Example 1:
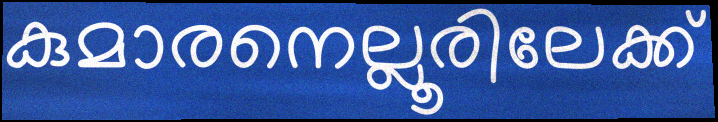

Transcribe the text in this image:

കുമാരനെല്ലൂരിലേക്ക്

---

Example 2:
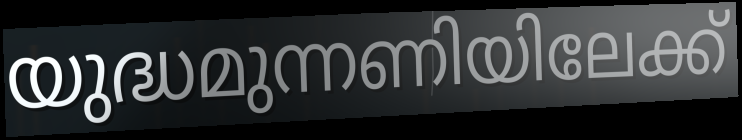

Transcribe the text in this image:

യുദ്ധമുന്നണിയിലേക്ക്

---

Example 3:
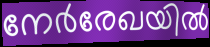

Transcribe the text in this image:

നേർരേഖയിൽ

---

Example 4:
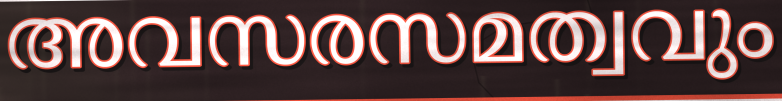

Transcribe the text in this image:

അവസരസമത്വവും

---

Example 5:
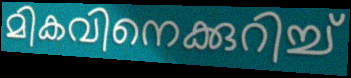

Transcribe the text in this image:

മികവിനെക്കുറിച്ച്